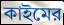
কাইমের